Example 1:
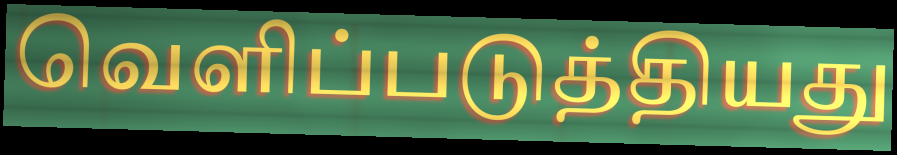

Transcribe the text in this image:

வெளிப்படுத்தியது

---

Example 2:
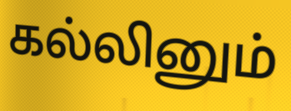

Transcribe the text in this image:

கல்லினும்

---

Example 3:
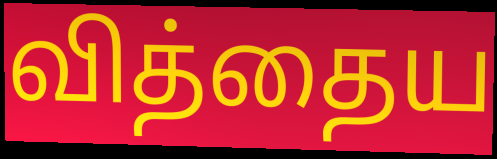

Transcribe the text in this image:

வித்தைய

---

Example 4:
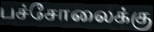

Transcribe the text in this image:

பச்சோலைக்கு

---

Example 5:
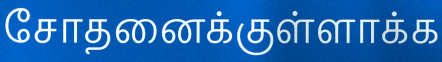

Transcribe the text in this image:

சோதனைக்குள்ளாக்க